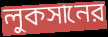
লুকসানের